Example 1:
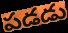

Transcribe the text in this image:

పడడు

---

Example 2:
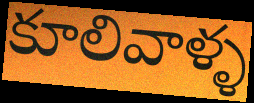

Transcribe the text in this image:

కూలివాళ్ళ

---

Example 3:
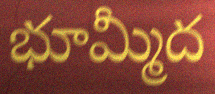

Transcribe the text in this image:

భూమ్మీద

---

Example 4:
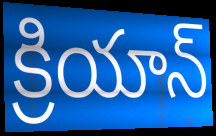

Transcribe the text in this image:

క్రియాన్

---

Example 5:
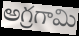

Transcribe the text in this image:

అగ్రగామి